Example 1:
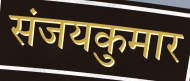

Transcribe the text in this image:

संजयकुमार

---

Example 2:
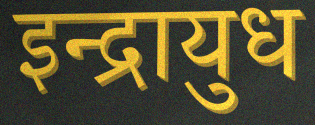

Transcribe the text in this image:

इन्द्रायुध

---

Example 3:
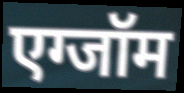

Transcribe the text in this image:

एग्जॉम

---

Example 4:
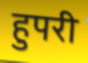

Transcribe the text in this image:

हुपरी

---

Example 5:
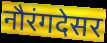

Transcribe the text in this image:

नौरंगदेसर